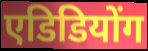
एडिडियोंग